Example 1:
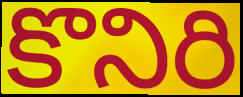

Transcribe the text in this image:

కొనిరి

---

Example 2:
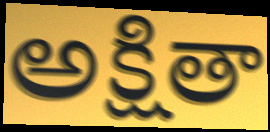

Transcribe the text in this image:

అక్షితా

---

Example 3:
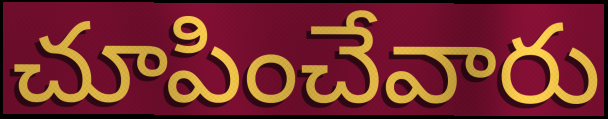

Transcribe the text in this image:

చూపించేవారు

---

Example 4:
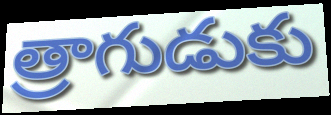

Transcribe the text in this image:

త్రాగుడుకు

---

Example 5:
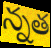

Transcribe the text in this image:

న్నత